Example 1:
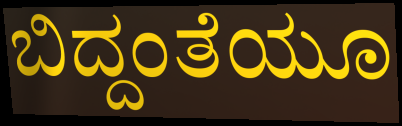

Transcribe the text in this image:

ಬಿದ್ದಂತೆಯೂ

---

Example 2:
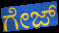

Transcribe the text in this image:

ಗೇಜ್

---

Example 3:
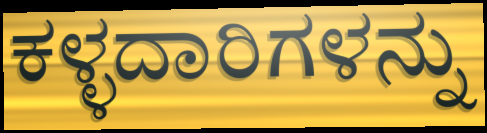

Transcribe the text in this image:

ಕಳ್ಳದಾರಿಗಳನ್ನು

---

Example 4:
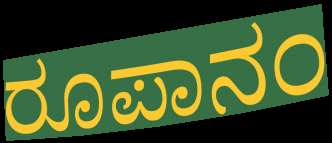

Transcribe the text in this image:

ರೂಪಾನಂ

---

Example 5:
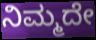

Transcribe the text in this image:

ನಿಮ್ಮದೇ